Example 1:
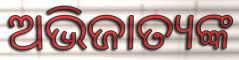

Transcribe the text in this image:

ଅଭିଜାତ୍ୟଙ୍କ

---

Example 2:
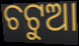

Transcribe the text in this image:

ଚଟୁଆ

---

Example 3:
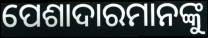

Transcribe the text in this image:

ପେଶାଦାରମାନଙ୍କୁ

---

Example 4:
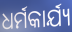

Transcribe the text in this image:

ଧର୍ମକାର୍ଯ୍ୟ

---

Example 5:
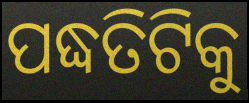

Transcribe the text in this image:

ପଦ୍ଧତିଟିକୁ